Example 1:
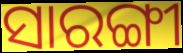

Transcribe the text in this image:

ସାରଙ୍ଗୀ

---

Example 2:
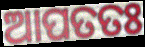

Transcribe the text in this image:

ଆପତତଃ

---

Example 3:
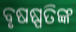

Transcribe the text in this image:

ବୃଷଷ୍ପତିଙ୍କ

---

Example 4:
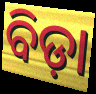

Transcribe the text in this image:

ବିଡ଼ା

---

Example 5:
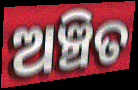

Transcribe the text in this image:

ଅଞ୍ଚିତ